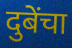
दुबेंचा